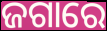
ଜଗାରେ